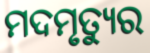
ମଦମୃତ୍ୟୁର